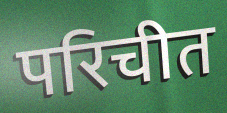
परिचीत